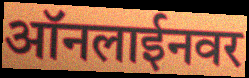
ऑनलाईनवर